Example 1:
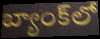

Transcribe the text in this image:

బ్యాంక్‌లో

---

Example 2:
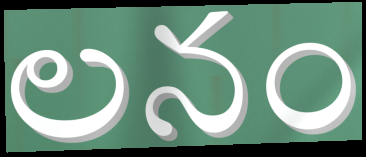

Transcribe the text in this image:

లనం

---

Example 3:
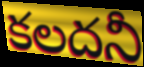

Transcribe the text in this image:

కలదనీ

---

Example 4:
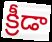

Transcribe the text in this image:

క్రీడా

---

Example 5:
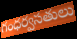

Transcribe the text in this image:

గంధర్వసతులు